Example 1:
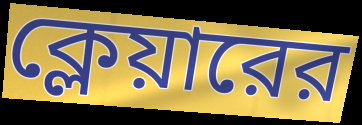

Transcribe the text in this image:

ক্লেয়ারের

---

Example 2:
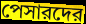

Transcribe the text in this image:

পেসারদের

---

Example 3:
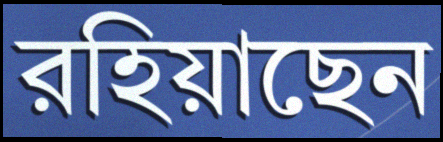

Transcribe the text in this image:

রহিয়াছেন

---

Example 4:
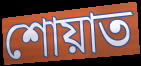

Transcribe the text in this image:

শোয়াত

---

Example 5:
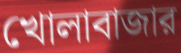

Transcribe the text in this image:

খোলাবাজার